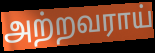
அற்றவராய்